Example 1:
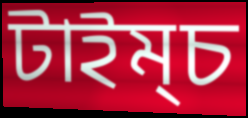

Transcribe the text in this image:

টাইম্‌চ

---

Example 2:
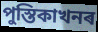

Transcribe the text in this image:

পুস্তিকাখনৰ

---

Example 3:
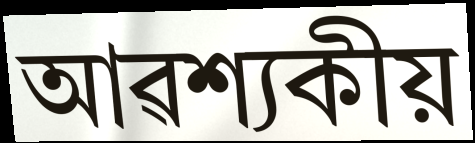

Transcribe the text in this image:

আৱশ্য়কীয়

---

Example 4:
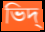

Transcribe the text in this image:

ভিদ্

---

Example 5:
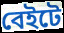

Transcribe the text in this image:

বেইটে